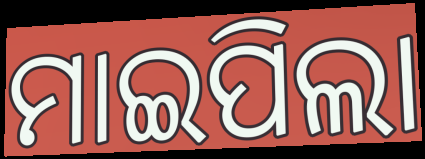
ମାଇପିଲା